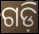
ଗଡ଼ି